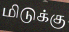
மிடுக்கு